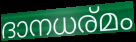
ദാനധര്മം